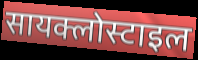
सायक्लोस्टाइल